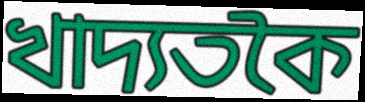
খাদ্যতকৈ